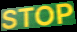
STOP